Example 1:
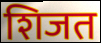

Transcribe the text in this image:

शिजत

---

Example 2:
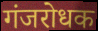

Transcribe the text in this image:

गंजरोधक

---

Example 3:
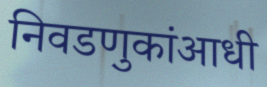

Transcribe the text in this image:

निवडणुकांआधी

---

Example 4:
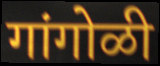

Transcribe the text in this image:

गांगोळी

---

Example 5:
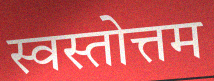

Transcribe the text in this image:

स्वस्तोत्तम